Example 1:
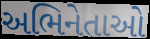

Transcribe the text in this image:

અભિનેતાઓ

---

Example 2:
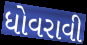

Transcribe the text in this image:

ધોવરાવી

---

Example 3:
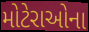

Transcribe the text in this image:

મોટેરાઓના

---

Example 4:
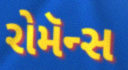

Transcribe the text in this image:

રોમૅન્સ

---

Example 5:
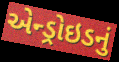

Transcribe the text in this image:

એન્ડ્રોઇડનું